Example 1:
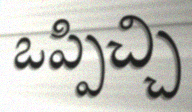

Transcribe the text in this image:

ఒప్పిచ్చి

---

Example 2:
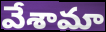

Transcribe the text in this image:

వేశామా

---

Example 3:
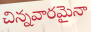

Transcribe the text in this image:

చిన్నవారమైనా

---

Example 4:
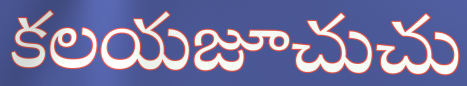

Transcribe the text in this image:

కలయజూచుచు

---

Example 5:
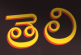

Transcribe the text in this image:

తెలి